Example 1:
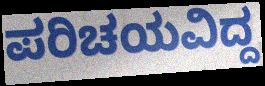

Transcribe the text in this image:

ಪರಿಚಯವಿದ್ದ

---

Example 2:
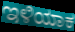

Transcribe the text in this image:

ಇಳಿಯಾಕ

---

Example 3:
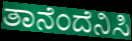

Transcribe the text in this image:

ತಾನೆಂದೆನಿಸಿ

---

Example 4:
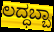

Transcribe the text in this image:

ಲದ್ಧಬ್ಬಾ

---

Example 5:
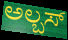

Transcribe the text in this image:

ಅಲ್ಬಸ್